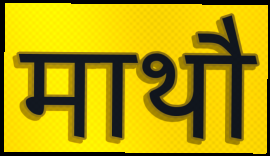
माथौ